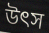
উত্‍স